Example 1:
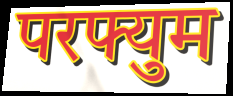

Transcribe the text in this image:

परफ्युम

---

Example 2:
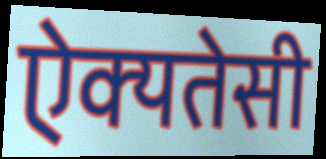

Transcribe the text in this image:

ऐक्यतेसी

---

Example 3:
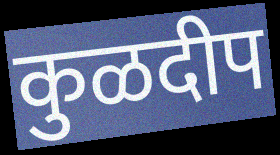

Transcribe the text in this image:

कुळदीप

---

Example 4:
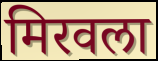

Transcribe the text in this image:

मिरवला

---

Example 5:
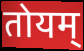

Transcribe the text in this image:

तोयम्